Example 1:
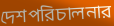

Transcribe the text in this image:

দেশপরিচালনার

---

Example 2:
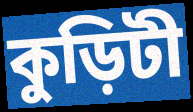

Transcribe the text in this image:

কুড়িটী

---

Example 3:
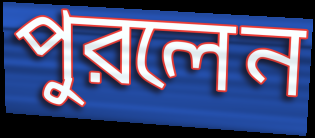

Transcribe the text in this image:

পুরলেন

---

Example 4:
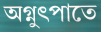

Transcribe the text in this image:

অগ্নুৎপাতে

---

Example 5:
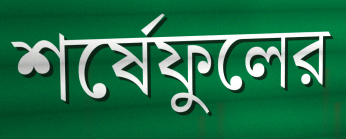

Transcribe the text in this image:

শর্ষেফুলের